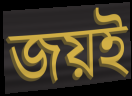
জয়ই